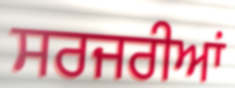
ਸਰਜਰੀਆਂ